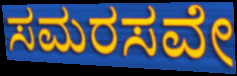
ಸಮರಸವೇ